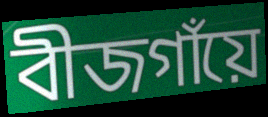
বীজগাঁয়ে